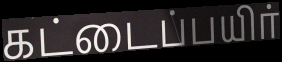
கட்டைப்பயிர்